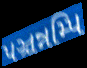
પઞ્ચન્નમ્પિ